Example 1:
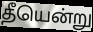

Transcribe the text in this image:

தீயென்று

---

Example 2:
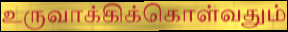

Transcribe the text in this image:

உருவாக்கிக்கொள்வதும்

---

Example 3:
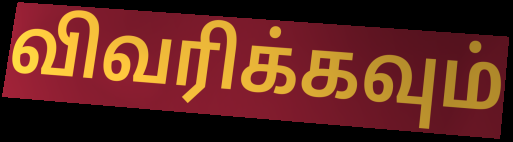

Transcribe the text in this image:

விவரிக்கவும்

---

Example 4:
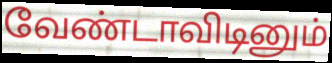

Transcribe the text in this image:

வேண்டாவிடினும்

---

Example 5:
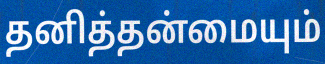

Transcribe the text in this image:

தனித்தன்மையும்